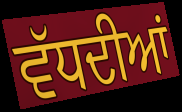
ਵੱਧਦੀਆਂ